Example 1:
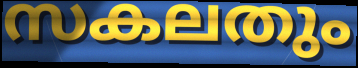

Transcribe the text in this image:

സകലതും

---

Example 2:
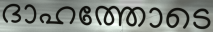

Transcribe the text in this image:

ദാഹത്തോടെ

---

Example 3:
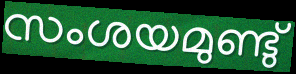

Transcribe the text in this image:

സംശയമുണ്ടു്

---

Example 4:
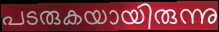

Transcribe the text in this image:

പടരുകയായിരുന്നു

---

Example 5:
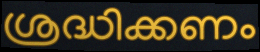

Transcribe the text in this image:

ശ്രദ്ധിക്കണം